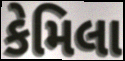
કેમિલા